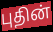
புதின்